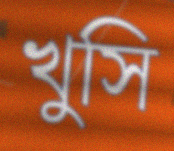
খুসি